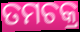
ତମଚକ୍ର